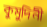
কুমুদিনী